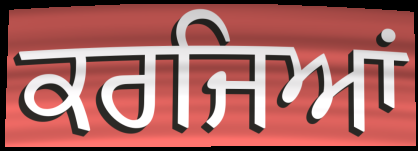
ਕਰਜਿਆਂ